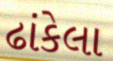
ઢાંકેલા